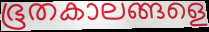
ഭൂതകാലങ്ങളെ